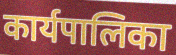
कार्यपालिका